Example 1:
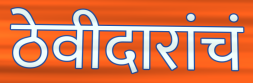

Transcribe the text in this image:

ठेवीदारांचं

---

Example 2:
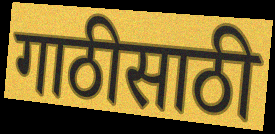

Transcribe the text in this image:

गाठीसाठी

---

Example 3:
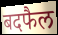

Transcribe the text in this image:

बदफैल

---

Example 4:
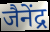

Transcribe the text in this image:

जैनेंद्र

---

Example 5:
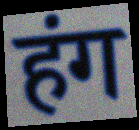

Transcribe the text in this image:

हंग